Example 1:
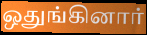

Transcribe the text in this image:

ஒதுங்கினார்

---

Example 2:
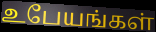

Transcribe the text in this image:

உபேயங்கள்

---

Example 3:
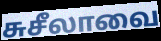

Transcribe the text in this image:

சுசீலாவை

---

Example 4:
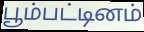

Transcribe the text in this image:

பூம்பட்டினம்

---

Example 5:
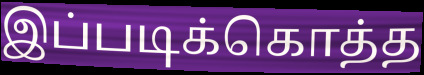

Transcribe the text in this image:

இப்படிக்கொத்த